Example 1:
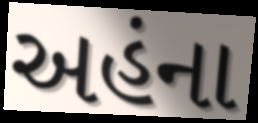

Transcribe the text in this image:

અહંના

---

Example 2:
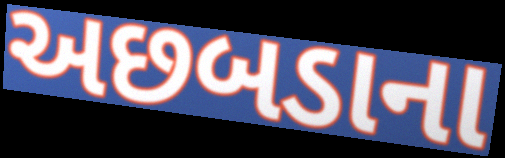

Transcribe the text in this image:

અછબડાના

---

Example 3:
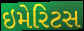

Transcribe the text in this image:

ઇમેરિટસ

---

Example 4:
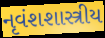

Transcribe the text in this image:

નૃવંશશાસ્ત્રીય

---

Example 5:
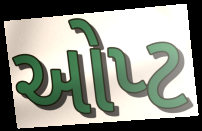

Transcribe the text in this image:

ઓપ્ટ